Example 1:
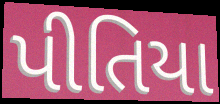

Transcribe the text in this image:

પીતિયા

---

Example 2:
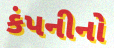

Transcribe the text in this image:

કંપનીનો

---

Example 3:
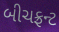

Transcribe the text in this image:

બીચફ્રન્ટ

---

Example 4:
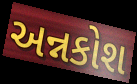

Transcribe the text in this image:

અન્નકોશ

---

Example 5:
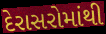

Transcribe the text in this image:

દેરાસરોમાંથી